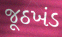
જૂઠખંડ